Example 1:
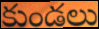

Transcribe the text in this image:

కుండలు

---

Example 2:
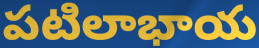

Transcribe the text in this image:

పటిలాభాయ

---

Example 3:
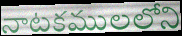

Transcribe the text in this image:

నాటకములలోని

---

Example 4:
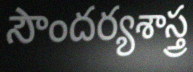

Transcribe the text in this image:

సౌందర్యశాస్త్ర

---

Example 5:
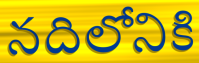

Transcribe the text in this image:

నదిలోనికి